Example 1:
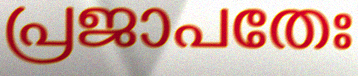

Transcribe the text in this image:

പ്രജാപതേഃ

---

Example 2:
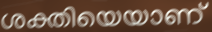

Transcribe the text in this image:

ശക്തിയെയാണ്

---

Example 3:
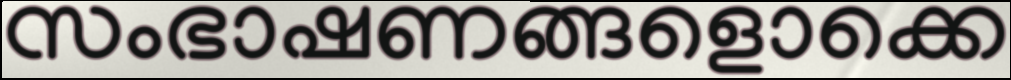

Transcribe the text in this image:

സംഭാഷണങ്ങളൊക്കെ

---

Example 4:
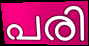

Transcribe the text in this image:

പരി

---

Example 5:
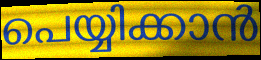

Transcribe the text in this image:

പെയ്യിക്കാൻ